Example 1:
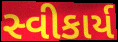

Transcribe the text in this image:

સ્વીકાર્ય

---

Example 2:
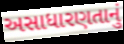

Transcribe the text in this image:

અસાધારણતાનું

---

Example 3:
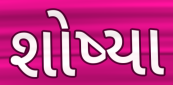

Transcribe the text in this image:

શોષ્યા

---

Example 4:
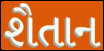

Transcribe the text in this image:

શૈતાન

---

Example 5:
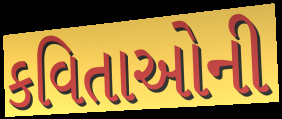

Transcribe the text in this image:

કવિતાઓની